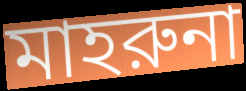
মাহরুনা